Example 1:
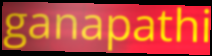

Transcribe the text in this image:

ganapathi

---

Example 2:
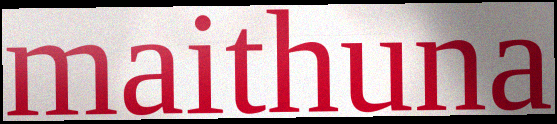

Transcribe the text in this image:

maithuna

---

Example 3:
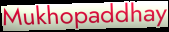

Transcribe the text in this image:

Mukhopaddhay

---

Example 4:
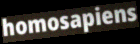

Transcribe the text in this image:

homosapiens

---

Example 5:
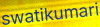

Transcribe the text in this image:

swatikumari